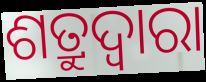
ଶତ୍ରୁଦ୍ଵାରା